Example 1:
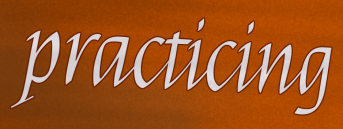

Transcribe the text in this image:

practicing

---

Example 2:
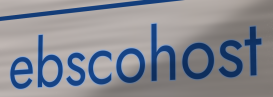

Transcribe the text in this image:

ebscohost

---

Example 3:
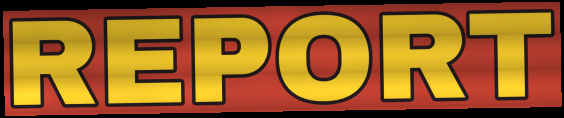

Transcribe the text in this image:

REPORT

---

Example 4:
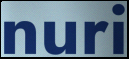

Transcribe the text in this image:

nuri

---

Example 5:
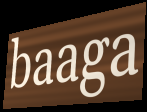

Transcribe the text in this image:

baaga